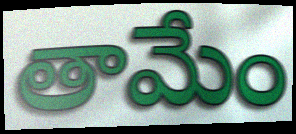
తామేం